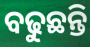
ବଢୁଛନ୍ତି